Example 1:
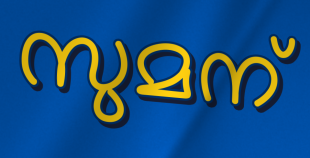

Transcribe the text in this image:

സുമന്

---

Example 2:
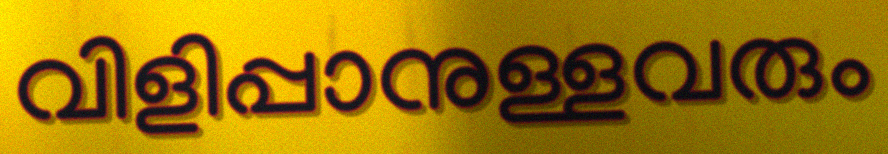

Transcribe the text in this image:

വിളിപ്പാനുള്ളവരും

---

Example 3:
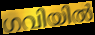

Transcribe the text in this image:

ഗവിയിൽ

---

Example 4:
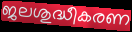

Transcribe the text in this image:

ജലശുദ്ധീകരണ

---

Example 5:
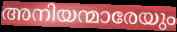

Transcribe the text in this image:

അനിയന്മാരേയും